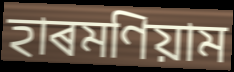
হাৰমণিয়াম